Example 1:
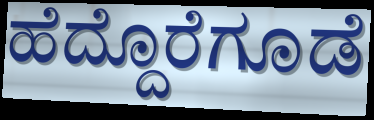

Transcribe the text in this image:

ಹೆದ್ದೊರೆಗೂಡೆ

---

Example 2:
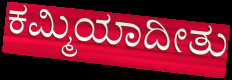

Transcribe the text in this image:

ಕಮ್ಮಿಯಾದೀತು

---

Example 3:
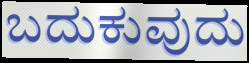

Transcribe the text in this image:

ಬದುಕುವುದು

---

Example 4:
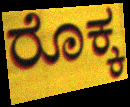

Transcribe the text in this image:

ರೊಕ್ಕ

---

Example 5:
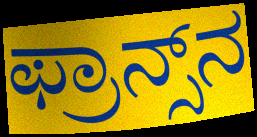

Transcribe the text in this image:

ಫ್ರಾನ್ಸ್‌ನ